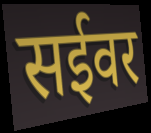
सईवर